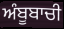
ਅੰਬੂਬਾਚੀ